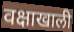
वक्षाखाली